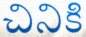
చినికి